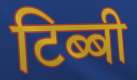
टिब्बी